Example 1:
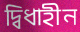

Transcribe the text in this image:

দ্বিধাহীন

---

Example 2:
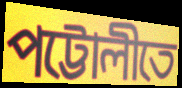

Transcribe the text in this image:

পট্টোলীতে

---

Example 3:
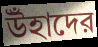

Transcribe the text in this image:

উঁহাদের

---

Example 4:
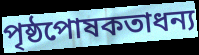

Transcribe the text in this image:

পৃষ্ঠপোষকতাধন্য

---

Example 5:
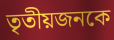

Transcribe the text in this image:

তৃতীয়জনকে